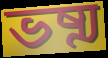
ভষ্ম